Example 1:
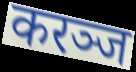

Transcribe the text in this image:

करञ्ज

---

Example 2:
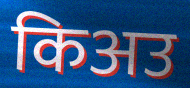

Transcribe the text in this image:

किअउ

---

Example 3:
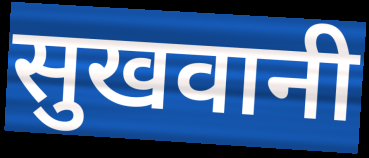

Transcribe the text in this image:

सुखवानी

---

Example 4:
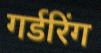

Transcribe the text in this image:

गर्डरिंग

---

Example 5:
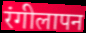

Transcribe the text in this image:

रंगीलापन